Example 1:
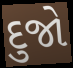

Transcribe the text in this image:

દુજો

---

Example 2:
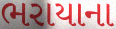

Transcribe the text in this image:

ભરાયાના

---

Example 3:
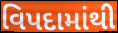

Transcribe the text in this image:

વિપદામાંથી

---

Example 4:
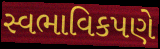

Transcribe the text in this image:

સ્વભાવિકપણે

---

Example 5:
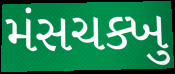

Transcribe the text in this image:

મંસચક્ખુ